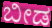
ಬೀಡ